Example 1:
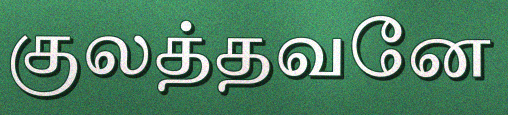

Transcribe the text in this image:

குலத்தவனே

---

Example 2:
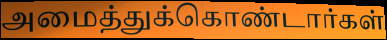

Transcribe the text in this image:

அமைத்துக்கொண்டார்கள்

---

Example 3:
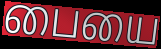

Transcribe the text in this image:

பையை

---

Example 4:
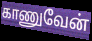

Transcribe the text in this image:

காணுவேன்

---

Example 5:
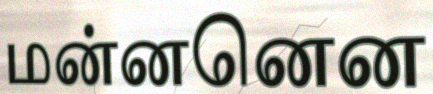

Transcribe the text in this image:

மன்னனென